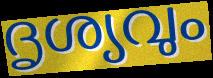
ദൃശ്യവും